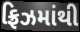
ફ્રિઝમાંથી